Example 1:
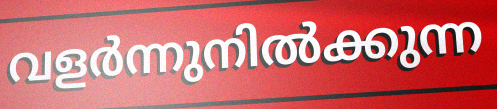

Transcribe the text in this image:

വളർന്നുനിൽക്കുന്ന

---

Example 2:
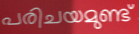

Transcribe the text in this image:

പരിചയമുണ്ട്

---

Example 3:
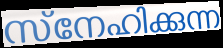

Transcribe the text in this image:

സ്‌നേഹിക്കുന്ന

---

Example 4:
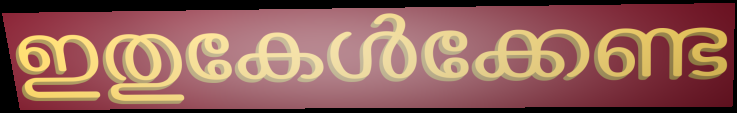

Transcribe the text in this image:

ഇതുകേൾക്കേണ്ട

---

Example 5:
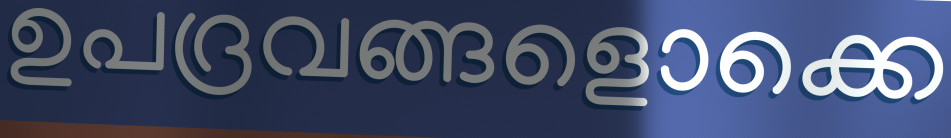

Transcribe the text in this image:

ഉപദ്രവങ്ങളൊക്കെ